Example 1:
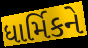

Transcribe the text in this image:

ધાર્મિકને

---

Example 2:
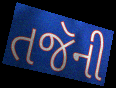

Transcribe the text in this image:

તજૅની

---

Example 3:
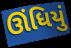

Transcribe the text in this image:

ઊંધિયું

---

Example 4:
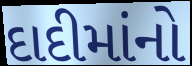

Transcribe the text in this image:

દાદીમાંનો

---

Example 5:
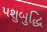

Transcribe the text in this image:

પશુબુદ્ધિ